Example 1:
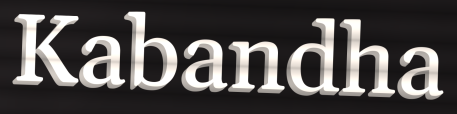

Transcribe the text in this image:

Kabandha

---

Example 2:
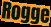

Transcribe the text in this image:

Rogge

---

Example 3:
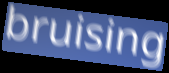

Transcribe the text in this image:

bruising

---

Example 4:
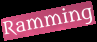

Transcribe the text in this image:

Ramming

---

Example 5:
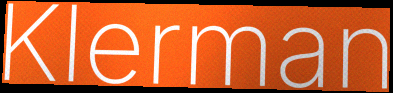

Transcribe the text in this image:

Klerman